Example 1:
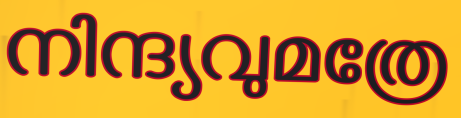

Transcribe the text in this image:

നിന്ദ്യവുമത്രേ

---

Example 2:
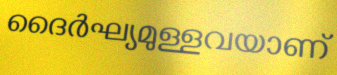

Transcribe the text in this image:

ദൈർഘ്യമുള്ളവയാണ്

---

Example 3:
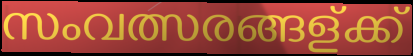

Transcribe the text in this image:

സംവത്സരങ്ങള്ക്ക്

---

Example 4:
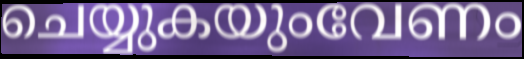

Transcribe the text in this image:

ചെയ്യുകയുംവേണം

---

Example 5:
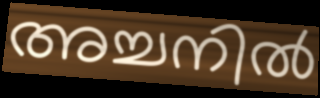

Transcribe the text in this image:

അച്ചനിൽ